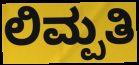
ಲಿಮ್ಪತಿ